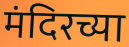
मंदिरच्या